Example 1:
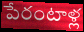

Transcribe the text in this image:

పేరంటాళ్ల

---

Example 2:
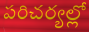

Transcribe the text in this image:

పరిచర్యల్లో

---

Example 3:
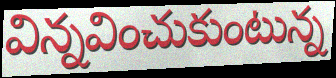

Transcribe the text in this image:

విన్నవించుకుంటున్న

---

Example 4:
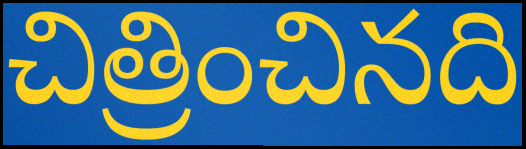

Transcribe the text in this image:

చిత్రించినది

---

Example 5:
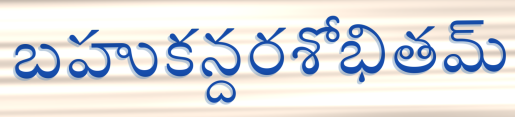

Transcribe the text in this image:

బహుకన్దరశోభితమ్